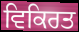
ਵਿਕਿਰਤ